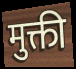
मुक्ती